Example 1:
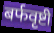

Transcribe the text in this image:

बर्फवृष्टी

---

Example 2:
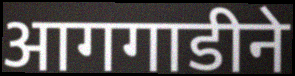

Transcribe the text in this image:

आगगाडीने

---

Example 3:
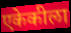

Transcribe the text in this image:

एकेकीला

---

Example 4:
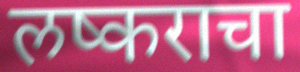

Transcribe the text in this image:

लष्कराचा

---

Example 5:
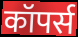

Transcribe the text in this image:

कॉपर्स